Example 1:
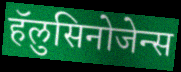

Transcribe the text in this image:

हॅलुसिनोजेन्स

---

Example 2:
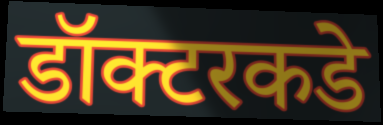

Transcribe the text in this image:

डॉक्टरकडे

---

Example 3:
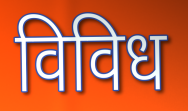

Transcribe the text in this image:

विविध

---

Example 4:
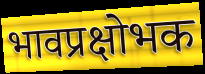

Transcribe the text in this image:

भावप्रक्षोभक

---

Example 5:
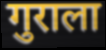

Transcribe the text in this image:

गुराला